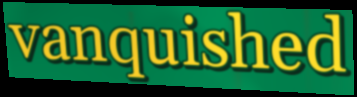
vanquished